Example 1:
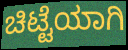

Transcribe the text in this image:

ಚಿಟ್ಟೆಯಾಗಿ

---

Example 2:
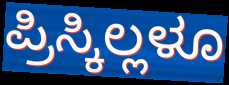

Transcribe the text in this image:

ಪ್ರಿಸ್ಕಿಲ್ಲಳೂ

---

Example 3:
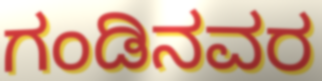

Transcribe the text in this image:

ಗಂಡಿನವರ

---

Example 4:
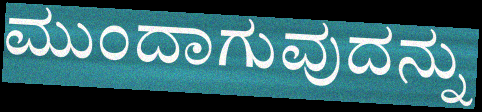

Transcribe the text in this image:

ಮುಂದಾಗುವುದನ್ನು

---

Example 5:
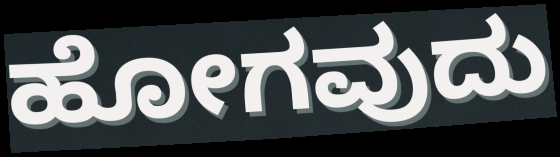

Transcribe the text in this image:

ಹೋಗವುದು